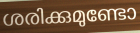
ശരിക്കുമുണ്ടോ